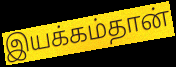
இயக்கம்தான்